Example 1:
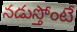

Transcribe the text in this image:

నడుస్తోంటే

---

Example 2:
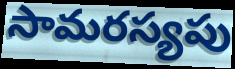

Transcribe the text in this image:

సామరస్యపు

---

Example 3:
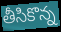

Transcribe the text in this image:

తీసికొన్న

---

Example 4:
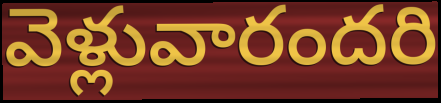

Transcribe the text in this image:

వెళ్లువారందరి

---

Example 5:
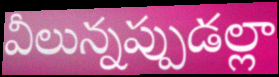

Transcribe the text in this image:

వీలున్నప్పుడల్లా